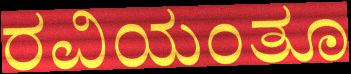
ರವಿಯಂತೂ